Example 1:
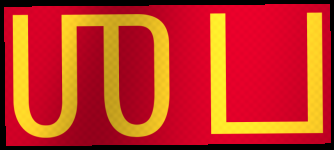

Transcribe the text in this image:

ஶப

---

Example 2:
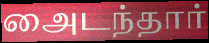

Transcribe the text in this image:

அைடந்தார்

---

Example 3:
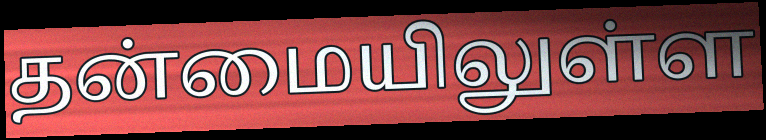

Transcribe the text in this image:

தன்மையிலுள்ள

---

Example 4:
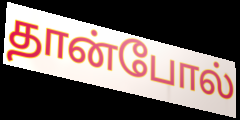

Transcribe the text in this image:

தான்போல்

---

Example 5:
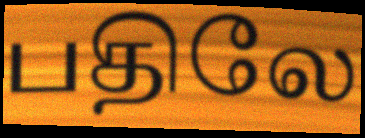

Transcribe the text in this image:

பதிலே